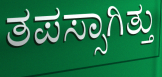
ತಪಸ್ಸಾಗಿತ್ತು